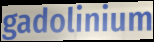
gadolinium